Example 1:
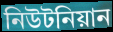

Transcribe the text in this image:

নিউটনিয়ান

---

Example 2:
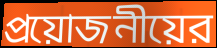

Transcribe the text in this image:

প্রয়োজনীয়ের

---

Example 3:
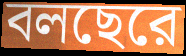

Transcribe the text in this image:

বলছেরে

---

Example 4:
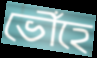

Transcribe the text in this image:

ভৌঁহে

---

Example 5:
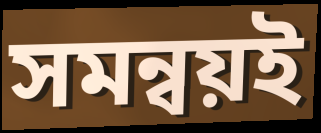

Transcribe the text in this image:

সমন্বয়ই